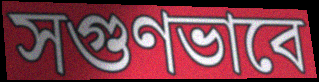
সগুণভাবে